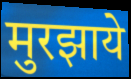
मुरझाये